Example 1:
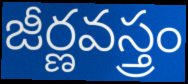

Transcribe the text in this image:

జీర్ణవస్త్రం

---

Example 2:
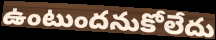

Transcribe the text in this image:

ఉంటుందనుకోలేదు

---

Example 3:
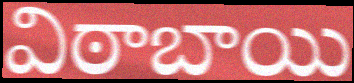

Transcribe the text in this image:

విఠాబాయి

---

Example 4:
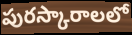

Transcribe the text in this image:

పురస్కారాలలో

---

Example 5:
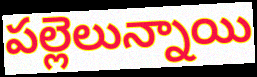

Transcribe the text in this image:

పల్లెలున్నాయి